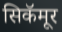
सिकॅमूर